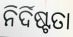
ନିର୍ଦିଷ୍ଟତା